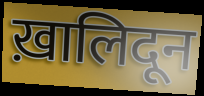
ख़ालिदून